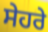
ਸੇਹਰੇ